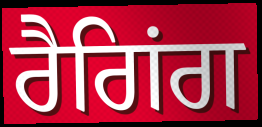
ਰੈਗਿਂਗ